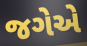
જગેએ